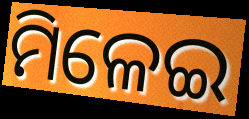
ମିଳେଇ